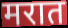
मरात